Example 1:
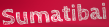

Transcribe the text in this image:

Sumatibai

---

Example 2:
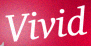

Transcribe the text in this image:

Vivid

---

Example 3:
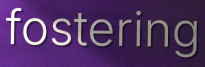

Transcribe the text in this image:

fostering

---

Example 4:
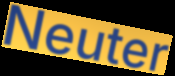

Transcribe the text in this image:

Neuter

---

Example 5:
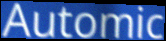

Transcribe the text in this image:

Automic